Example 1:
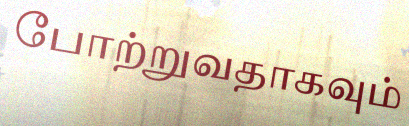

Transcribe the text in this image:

போற்றுவதாகவும்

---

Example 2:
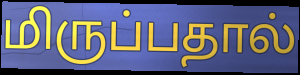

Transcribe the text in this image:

மிருப்பதால்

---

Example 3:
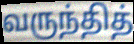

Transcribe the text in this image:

வருந்தித்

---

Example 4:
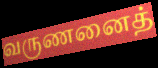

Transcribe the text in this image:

வருணனைத்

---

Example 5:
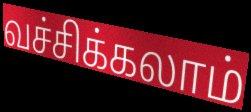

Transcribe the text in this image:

வச்சிக்கலாம்